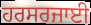
ਹਰਸਰਜਾਈ